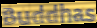
Buddhas